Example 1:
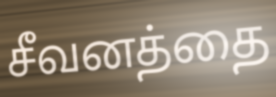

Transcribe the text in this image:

சீவனத்தை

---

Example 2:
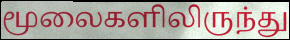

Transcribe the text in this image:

மூலைகளிலிருந்து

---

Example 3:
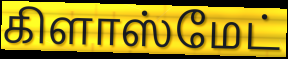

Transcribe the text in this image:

கிளாஸ்மேட்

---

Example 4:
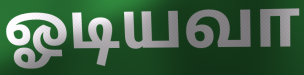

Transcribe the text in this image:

ஓடியவா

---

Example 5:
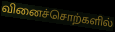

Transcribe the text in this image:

வினைச்சொற்களில்